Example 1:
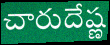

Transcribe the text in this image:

చారుదేష్ణ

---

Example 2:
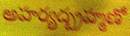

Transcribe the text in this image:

అహర్యద్బ్రహ్మణో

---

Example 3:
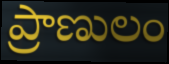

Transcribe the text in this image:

ప్రాణులం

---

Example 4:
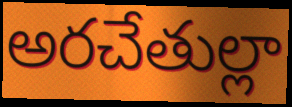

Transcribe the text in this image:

అరచేతుల్లా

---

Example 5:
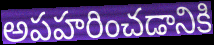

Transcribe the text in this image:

అపహరించడానికి